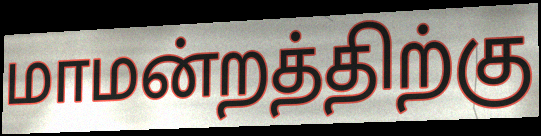
மாமன்றத்திற்கு